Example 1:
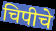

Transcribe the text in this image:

चिपीचे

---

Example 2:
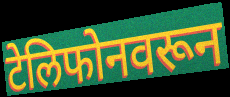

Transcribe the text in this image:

टेलिफोनवरून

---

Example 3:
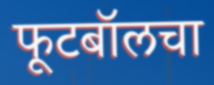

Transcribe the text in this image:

फूटबॉलचा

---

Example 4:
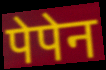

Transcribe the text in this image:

पेपेन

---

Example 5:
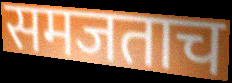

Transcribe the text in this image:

समजताच